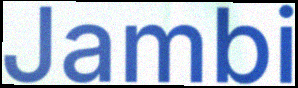
Jambi